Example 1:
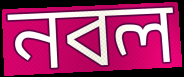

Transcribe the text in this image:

নবল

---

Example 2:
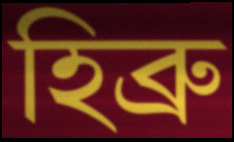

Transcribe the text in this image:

হিব্রু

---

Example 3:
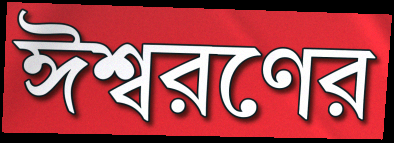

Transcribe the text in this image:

ঈশ্বরণের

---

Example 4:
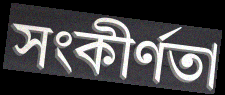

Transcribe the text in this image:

সংকীর্ণতা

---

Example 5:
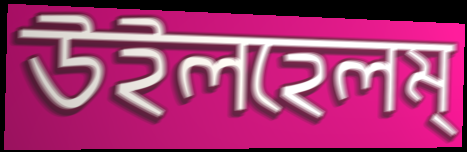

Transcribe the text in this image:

উইলহেলম্